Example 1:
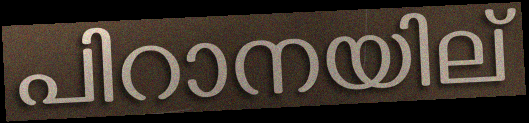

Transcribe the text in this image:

പിറാനയില്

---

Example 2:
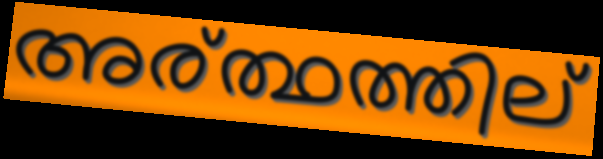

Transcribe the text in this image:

അര്ത്ഥത്തില്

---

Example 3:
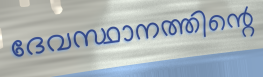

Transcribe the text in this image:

ദേവസ്ഥാനത്തിന്റെ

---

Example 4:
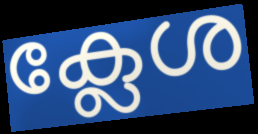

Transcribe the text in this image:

ക്ലേശ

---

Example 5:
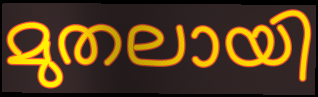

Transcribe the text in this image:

മുതലായി